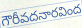
గౌరీవదనారవింద